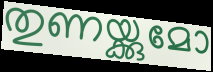
തുണയ്ക്കുമോ